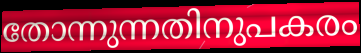
തോന്നുന്നതിനുപകരം